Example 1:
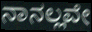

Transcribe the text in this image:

ನಾನಲ್ಲವೇ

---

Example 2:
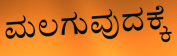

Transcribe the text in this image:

ಮಲಗುವುದಕ್ಕೆ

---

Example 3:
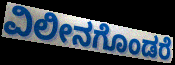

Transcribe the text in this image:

ವಿಲೀನಗೊಂಡರೆ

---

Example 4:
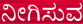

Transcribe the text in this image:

ನೀಗಿಸುವ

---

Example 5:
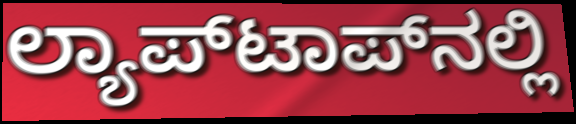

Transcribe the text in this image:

ಲ್ಯಾಪ್‌ಟಾಪ್‌ನಲ್ಲಿ